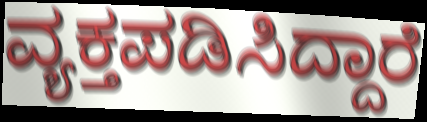
ವ್ಯಕ್ತಪಡಿಸಿದ್ದಾರೆ